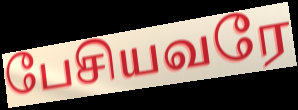
பேசியவரே